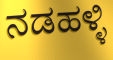
ನಡಹಳ್ಳಿ